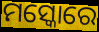
ମସ୍କୋରେ